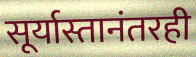
सूर्यास्तानंतरही